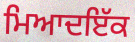
ਮਿਆਦਇੱਕ